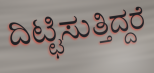
ದಿಟ್ಟಿಸುತ್ತಿದ್ದರೆ